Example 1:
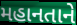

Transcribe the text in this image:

મહાનતાને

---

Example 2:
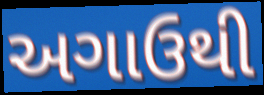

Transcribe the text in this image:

અગાઉથી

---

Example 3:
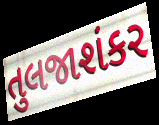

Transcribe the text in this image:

તુલજાશંકર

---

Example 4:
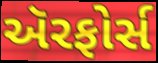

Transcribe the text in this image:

ઍરફોર્સ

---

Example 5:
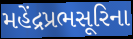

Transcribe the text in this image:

મહેંદ્રપ્રભસૂરિના